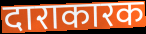
दाराकारक